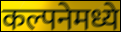
कल्पनेमध्ये